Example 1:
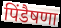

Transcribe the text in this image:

पिंडैषणा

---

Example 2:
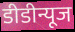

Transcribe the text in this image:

डीडीन्यूज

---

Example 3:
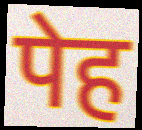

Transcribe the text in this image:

पेह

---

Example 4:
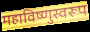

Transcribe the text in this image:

महाविष्णुस्वरूप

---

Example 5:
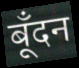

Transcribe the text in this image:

बूँदन